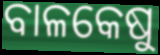
ବାଳକେଷୁ